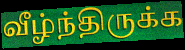
வீழ்ந்திருக்க